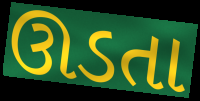
ઊડતા